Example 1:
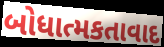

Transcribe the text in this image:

બોધાત્મકતાવાદ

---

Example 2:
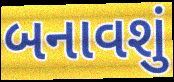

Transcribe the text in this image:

બનાવશું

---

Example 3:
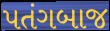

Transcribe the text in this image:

પતંગબાજ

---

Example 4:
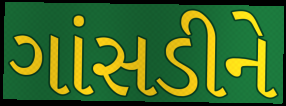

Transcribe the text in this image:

ગાંસડીને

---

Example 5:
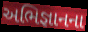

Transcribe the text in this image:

અભિજ્ઞાનના